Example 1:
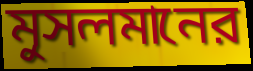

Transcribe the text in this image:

মুসলমানের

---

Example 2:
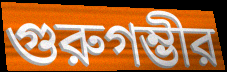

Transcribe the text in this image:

গুরুগম্ভীর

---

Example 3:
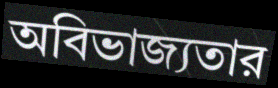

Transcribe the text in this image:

অবিভাজ্যতার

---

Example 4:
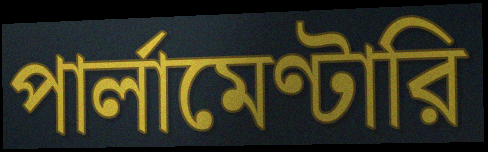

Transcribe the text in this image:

পার্লামেণ্টারি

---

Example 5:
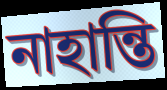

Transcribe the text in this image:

নাহান্তি